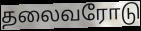
தலைவரோடு